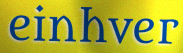
einhver